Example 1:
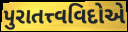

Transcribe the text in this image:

પુરાતત્ત્વવિદોએ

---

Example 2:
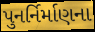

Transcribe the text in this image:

પુનર્નિર્માણના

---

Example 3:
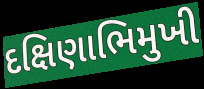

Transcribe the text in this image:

દક્ષિણાભિમુખી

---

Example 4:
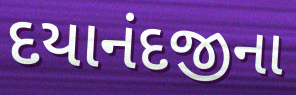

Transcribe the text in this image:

દયાનંદજીના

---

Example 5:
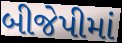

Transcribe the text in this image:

બીજેપીમાં